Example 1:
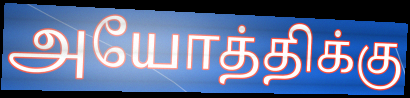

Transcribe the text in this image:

அயோத்திக்கு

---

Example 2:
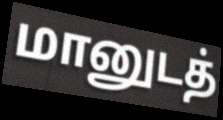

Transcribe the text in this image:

மானுடத்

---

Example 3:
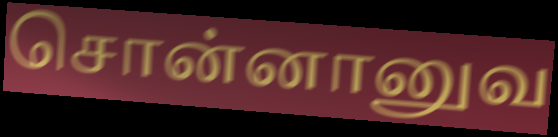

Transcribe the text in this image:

சொன்னானுவ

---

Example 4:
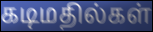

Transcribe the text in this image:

கடிமதில்கள்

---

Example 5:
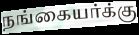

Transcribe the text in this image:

நங்கையர்க்கு